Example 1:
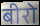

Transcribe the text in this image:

बीरो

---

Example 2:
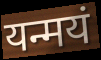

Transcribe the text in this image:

यन्मयं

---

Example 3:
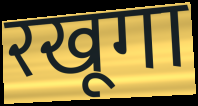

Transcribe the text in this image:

रखूगा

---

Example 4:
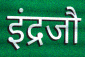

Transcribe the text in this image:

इंद्रजौ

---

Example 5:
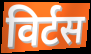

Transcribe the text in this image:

विर्टस